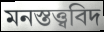
মনস্তত্ত্ববিদ